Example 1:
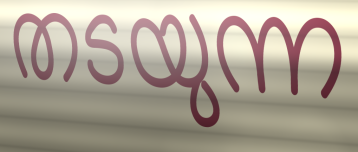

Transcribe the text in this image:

തടയുന്ന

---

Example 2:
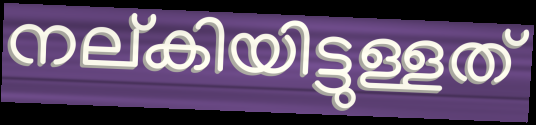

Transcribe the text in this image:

നല്കിയിട്ടുള്ളത്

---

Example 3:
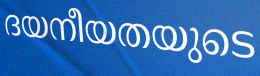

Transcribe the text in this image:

ദയനീയതയുടെ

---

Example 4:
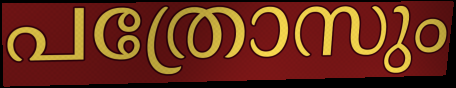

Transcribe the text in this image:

പത്രോസും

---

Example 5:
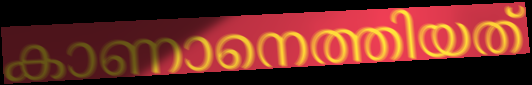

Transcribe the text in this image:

കാണാനെത്തിയത്